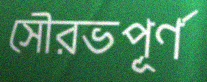
সৌরভপূর্ণ